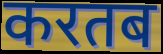
करतब